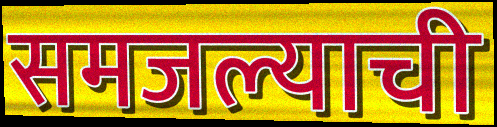
समजल्याची